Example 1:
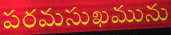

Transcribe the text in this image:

పరమసుఖమును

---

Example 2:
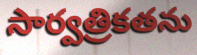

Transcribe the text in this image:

సార్వత్రికతను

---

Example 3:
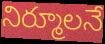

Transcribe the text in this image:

నిర్మూలనే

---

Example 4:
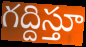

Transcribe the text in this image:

గద్దిస్తూ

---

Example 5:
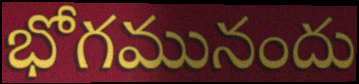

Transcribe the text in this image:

భోగమునందు